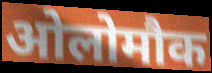
ओलोमौक